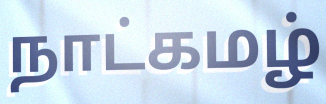
நாட்கமழ்